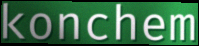
konchem